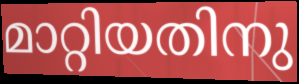
മാറ്റിയതിനു